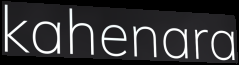
kahenara